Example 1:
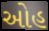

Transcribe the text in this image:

ઓહ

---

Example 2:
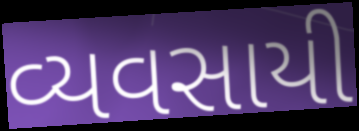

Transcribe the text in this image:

વ્યવસાયી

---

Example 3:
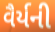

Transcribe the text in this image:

વૈર્યની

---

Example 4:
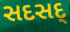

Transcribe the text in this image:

સદસદ્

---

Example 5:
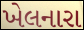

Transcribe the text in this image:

ખેલનારા